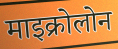
माइक्रोलोन